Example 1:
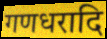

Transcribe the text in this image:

गणधरादि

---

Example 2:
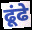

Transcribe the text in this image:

ढूंढे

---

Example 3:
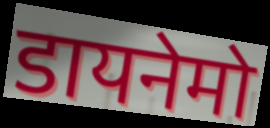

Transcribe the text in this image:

डायनेमो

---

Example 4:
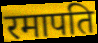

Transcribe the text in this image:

रमापति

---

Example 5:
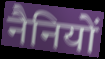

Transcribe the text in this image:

नैनियों